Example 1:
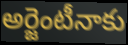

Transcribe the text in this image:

అర్జెంటీనాకు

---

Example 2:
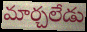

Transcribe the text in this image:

మార్చలేడు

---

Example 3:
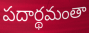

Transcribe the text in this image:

పదార్థమంతా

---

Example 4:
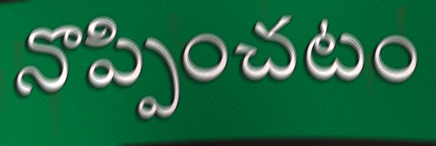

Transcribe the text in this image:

నొప్పించటం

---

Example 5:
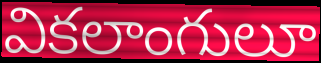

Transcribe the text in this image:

వికలాంగులూ